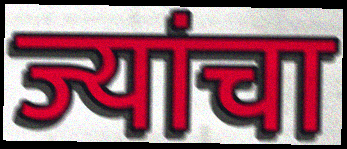
ज्यांचा